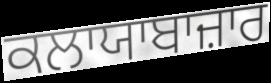
ਕਲਾਯਾਬਾਜ਼ਾਰ